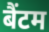
बैंटम